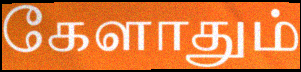
கேளாதும்